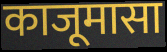
काजूमासा